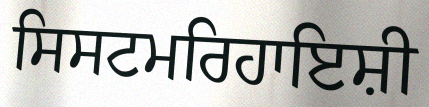
ਸਿਸਟਮਰਿਹਾਇਸ਼ੀ